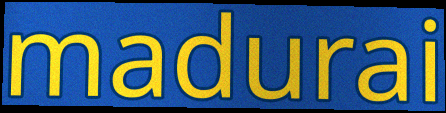
madurai